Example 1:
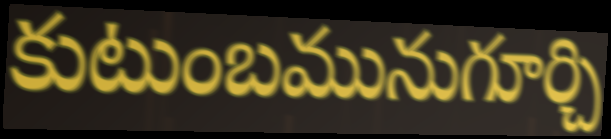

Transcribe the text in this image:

కుటుంబమునుగూర్చి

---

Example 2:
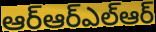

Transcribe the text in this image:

ఆర్ఆర్ఎల్ఆర్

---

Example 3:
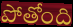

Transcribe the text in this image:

పోతోంది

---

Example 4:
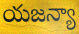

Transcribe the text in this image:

యజన్యా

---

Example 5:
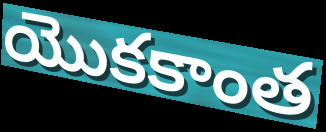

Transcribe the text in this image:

యొకకాంత